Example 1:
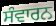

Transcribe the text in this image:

ਸੰਵਾਰਨ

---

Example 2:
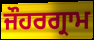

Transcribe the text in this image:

ਜੌਹਰਗ੍ਰਾਮ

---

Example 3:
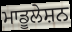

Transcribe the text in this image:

ਮਾਡੂਲੇਸ਼ਨ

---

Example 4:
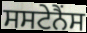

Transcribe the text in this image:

ਸਸਟੇਨੈਂਸ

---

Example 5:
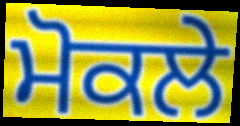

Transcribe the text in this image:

ਮੋਕਲੇ